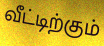
வீட்டிற்கும்